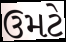
ઉમટે